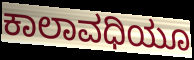
ಕಾಲಾವಧಿಯೂ